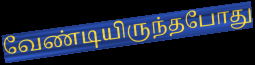
வேண்டியிருந்தபோது